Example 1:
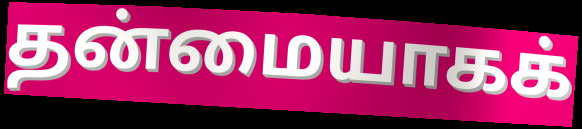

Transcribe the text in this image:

தன்மையாகக்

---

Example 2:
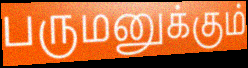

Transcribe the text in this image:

பருமனுக்கும்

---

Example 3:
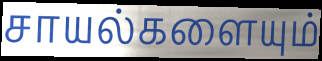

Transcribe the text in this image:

சாயல்களையும்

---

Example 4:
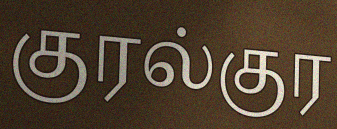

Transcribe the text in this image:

குரல்குர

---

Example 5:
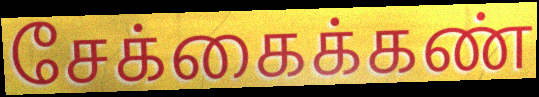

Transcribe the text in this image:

சேக்கைக்கண்